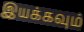
இயக்கவும்